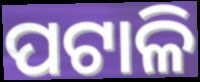
ପଟାଳି